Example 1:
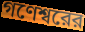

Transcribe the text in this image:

গণেশ্বরের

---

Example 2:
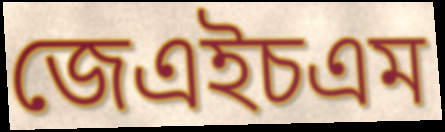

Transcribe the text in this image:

জেএইচএম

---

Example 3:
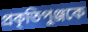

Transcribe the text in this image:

প্রকৃতিপুঞ্জকে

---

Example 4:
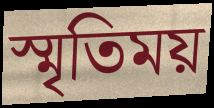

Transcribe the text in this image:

স্মৃতিময়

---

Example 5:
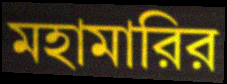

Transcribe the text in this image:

মহামারির